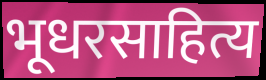
भूधरसाहित्य